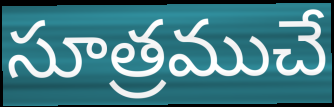
సూత్రముచే